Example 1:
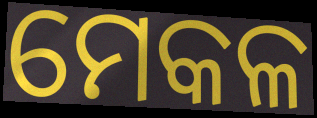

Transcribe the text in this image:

ମେକଳ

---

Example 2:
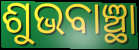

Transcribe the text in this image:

ଶୁଭବାଞ୍ଛା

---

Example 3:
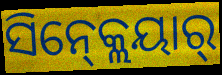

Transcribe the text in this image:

ସିନ୍କ୍ଲେୟାର୍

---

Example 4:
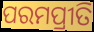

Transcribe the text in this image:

ପରମପ୍ରୀତି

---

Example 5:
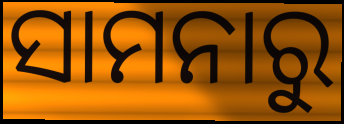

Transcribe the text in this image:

ସାମନାରୁ